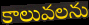
కాలువలను